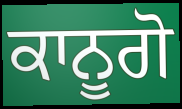
ਕਾਨੂਗੋ